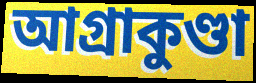
আগ্রাকুণ্ডা